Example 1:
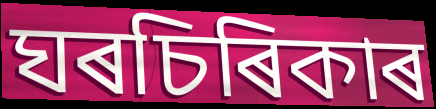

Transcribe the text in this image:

ঘৰচিৰিকাৰ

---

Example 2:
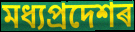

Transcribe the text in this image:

মধ্যপ্ৰদেশৰ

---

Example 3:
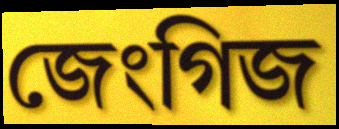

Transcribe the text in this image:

জেংগিজ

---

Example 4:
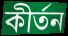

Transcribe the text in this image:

কীৰ্তন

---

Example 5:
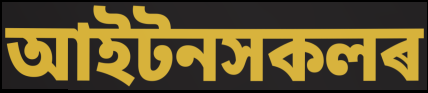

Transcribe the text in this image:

আইটনসকলৰ